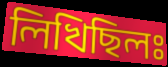
লিখিছিলঃ